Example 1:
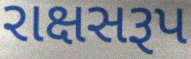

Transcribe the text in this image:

રાક્ષસરૂપ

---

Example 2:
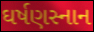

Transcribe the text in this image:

ઘર્ષણસ્નાન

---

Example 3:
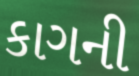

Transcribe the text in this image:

કાગની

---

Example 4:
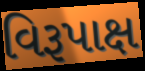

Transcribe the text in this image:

વિરૂપાક્ષ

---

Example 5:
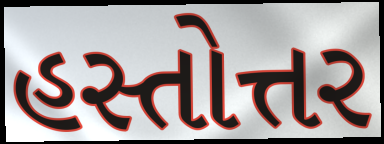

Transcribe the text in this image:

હસ્તોત્તર